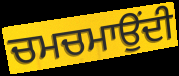
ਚਮਚਮਾਉਂਦੀ